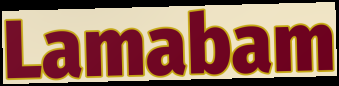
Lamabam